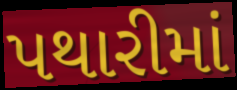
પથારીમાં